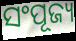
ସଂପୂଜ୍ଯ